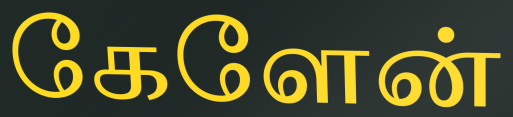
கேளேன்